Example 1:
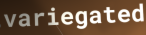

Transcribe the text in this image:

variegated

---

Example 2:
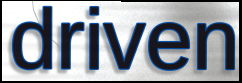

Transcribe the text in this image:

driven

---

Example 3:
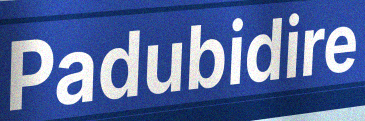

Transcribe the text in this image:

Padubidire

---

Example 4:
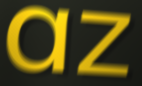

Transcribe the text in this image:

az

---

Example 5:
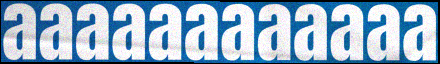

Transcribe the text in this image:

aaaaaaaaaaaa